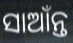
ସାଆଁନ୍ତ